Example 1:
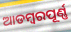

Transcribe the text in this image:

ଆଡମ୍ବରପୂର୍ଣ୍ଣ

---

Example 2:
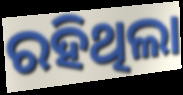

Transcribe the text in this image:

ରହିଥିଲା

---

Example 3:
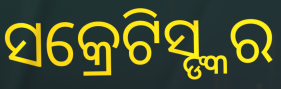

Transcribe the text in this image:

ସକ୍ରେଟିସ୍ଙ୍କର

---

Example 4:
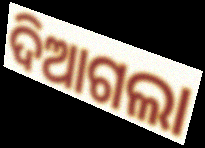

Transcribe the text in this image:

ଦିଆଗଲା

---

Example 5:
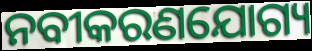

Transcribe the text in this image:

ନବୀକରଣଯୋଗ୍ୟ